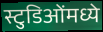
स्टुडिओंमध्ये